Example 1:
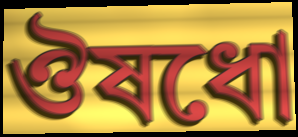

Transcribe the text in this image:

ঔষধো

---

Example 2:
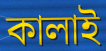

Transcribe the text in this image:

কালাই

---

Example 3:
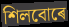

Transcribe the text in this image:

শিলবোৰে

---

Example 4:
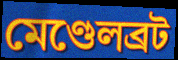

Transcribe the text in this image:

মেণ্ডেলব্ৰট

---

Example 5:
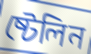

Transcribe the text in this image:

ষ্টেলিন